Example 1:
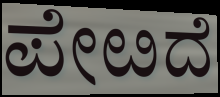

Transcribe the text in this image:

ಪೇೞದೆ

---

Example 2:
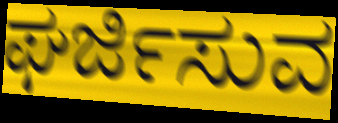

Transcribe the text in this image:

ಘರ್ಜಿಸುವ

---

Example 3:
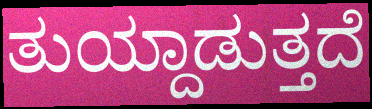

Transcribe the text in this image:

ತುಯ್ದಾಡುತ್ತದೆ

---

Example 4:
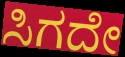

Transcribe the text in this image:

ಸಿಗದೇ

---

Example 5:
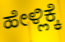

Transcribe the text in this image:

ಹೇಳ್ಲಿಕ್ಕೆ